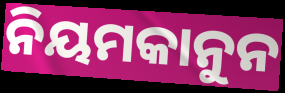
ନିୟମକାନୁନ